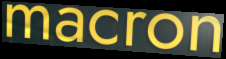
macron